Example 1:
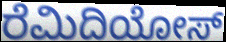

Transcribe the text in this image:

ರೆಮಿದಿಯೋಸ್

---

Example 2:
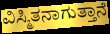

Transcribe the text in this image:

ವಿಸ್ಮಿತನಾಗುತ್ತಾನೆ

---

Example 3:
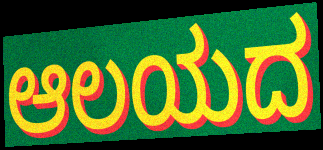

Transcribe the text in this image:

ಆಲಯದ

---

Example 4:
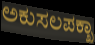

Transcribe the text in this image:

ಅಕುಸಲಪಕ್ಖಾ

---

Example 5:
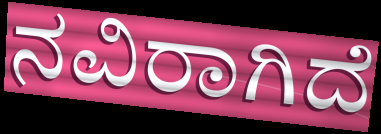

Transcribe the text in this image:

ನವಿರಾಗಿದೆ